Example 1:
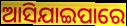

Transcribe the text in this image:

ଆସିଯାଇପାରେ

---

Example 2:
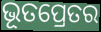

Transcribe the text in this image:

ଭୂତପ୍ରେତର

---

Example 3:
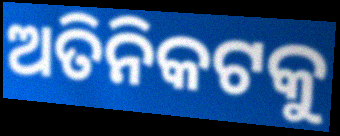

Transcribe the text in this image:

ଅତିନିକଟକୁ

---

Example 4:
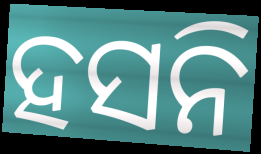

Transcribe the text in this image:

ହସନି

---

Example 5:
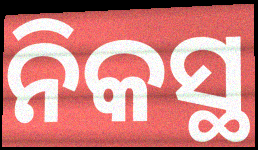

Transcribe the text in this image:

ନିକସ୍ଥ